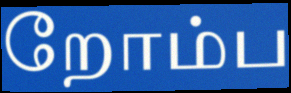
றோம்ப